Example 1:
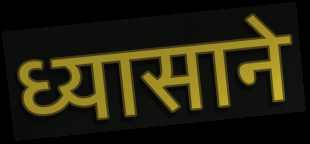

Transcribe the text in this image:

ध्यासाने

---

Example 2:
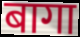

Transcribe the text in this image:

बागा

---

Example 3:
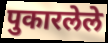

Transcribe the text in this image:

पुकारलेले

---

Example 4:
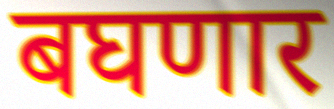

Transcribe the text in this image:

बघणार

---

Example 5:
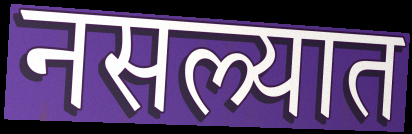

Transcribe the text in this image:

नसल्यात